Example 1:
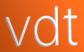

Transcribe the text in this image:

vdt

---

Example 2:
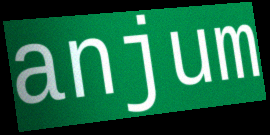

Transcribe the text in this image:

anjum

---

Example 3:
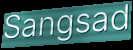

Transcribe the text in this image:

Sangsad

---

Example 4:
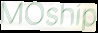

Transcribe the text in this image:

MOship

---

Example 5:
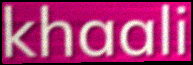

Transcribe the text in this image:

khaali